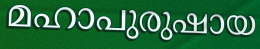
മഹാപുരുഷായ